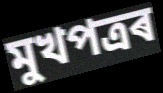
মুখপত্ৰৰ